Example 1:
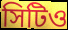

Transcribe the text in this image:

সিটিও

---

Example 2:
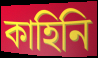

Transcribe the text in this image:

কাহিনি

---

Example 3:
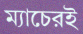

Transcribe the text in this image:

ম্যাচেরই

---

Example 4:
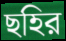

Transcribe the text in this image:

ছহির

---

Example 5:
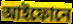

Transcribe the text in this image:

আইফোনে